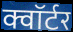
क्वॉर्टर